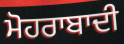
ਮੋਹਰਾਬਾਦੀ